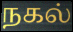
நகல்